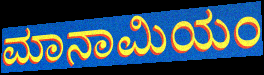
ಮಾನಾಮಿಯಂ